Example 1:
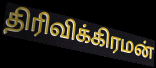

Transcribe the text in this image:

திரிவிக்கிரமன்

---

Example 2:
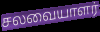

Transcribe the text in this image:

சலவையாளர்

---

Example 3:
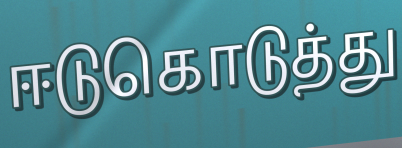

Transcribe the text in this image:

ஈடுகொடுத்து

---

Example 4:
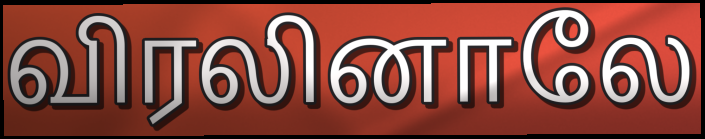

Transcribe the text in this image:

விரலினாலே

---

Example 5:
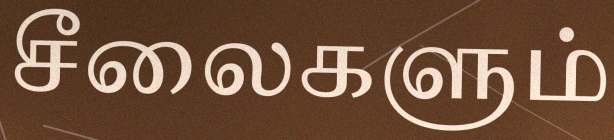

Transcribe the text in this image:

சீலைகளும்